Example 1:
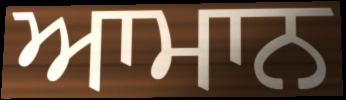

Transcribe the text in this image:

ਆਮਾਨ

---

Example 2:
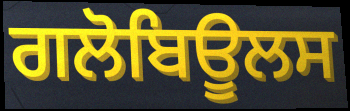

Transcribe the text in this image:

ਗਲੋਬਿਊਲਸ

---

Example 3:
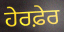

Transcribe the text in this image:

ਹੇਰਫ਼ੇਰ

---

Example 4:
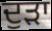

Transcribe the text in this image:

ਦੁੜਾ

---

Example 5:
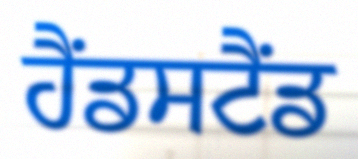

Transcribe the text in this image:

ਹੈਂਡਸਟੈਂਡ